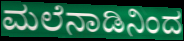
ಮಲೆನಾಡಿನಿಂದ